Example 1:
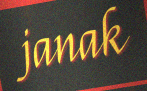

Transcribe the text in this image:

janak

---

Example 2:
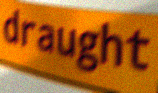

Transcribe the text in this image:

draught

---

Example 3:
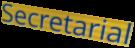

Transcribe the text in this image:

Secretarial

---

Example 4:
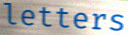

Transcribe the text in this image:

letters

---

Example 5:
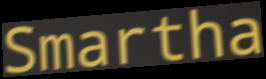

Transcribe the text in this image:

Smartha